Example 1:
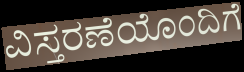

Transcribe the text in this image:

ವಿಸ್ತರಣೆಯೊಂದಿಗೆ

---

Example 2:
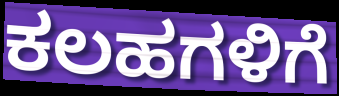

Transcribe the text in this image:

ಕಲಹಗಳಿಗೆ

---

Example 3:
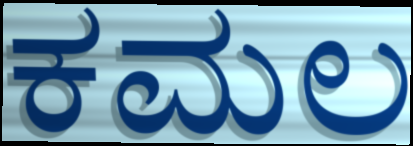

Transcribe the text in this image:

ಕಮಲ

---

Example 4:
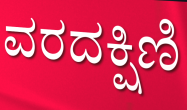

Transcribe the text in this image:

ವರದಕ್ಷಿಣಿ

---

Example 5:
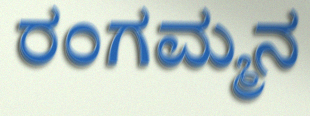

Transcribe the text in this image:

ರಂಗಮ್ಮನ